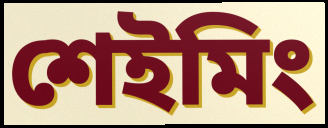
শেইমিং